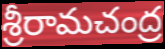
శ్రీరామచంద్ర